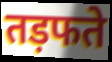
तड़फते